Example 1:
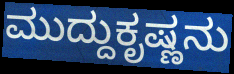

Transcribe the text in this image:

ಮುದ್ದುಕೃಷ್ಣನು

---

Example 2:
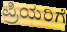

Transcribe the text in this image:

ಪ್ರಿಯರಿಗೆ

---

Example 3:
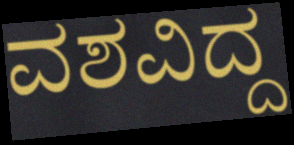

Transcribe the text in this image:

ವಶವಿದ್ದ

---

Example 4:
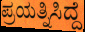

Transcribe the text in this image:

ಪ್ರಯತ್ನಿಸಿದ್ದೆ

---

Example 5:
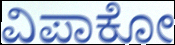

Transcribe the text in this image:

ವಿಪಾಕೋ